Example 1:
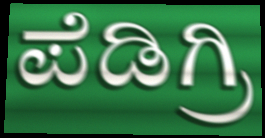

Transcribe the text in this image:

ಪೆಡಿಗ್ರಿ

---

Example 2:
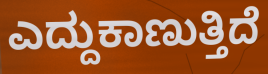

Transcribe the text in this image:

ಎದ್ದುಕಾಣುತ್ತಿದೆ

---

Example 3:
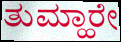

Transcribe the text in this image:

ತುಮ್ಹಾರೇ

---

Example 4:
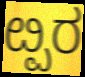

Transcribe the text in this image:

ೞ್ಪರ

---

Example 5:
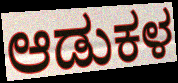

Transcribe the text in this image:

ಆಡುಕಳ